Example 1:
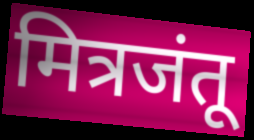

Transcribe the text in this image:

मित्रजंतू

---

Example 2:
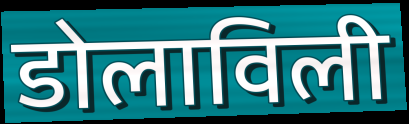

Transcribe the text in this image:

डोलाविली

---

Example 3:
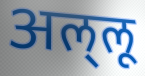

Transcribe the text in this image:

अल्लू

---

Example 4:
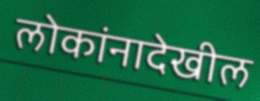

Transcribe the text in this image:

लोकांनादेखील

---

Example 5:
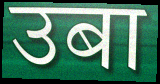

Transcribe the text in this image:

उबा